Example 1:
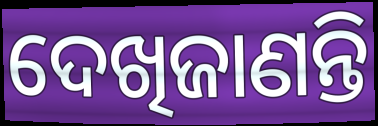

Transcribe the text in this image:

ଦେଖିଜାଣନ୍ତି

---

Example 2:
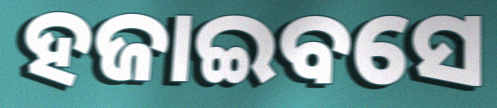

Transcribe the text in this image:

ହଜାଇବସେ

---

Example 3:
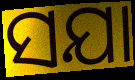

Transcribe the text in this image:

ସଯା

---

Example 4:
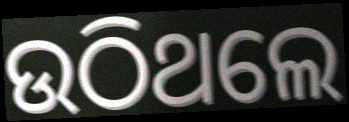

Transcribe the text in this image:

ଉଠିଥଲେ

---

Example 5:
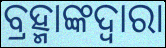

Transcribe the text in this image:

ବ୍ରହ୍ମାଙ୍କଦ୍ୱାରା